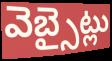
వెబ్సైట్లు